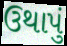
ઉથાપું